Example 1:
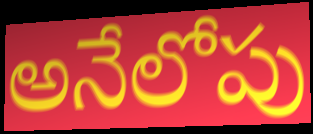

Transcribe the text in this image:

అనేలోపు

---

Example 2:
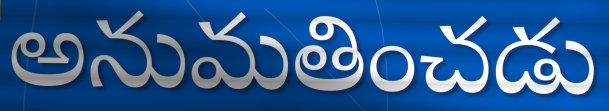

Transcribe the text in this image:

అనుమతించడు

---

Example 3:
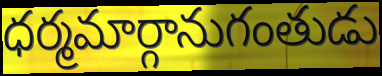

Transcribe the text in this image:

ధర్మమార్గానుగంతుడు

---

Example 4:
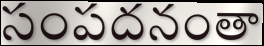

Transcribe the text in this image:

సంపదనంతా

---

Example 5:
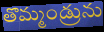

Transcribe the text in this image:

తొమ్మండ్రును